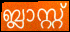
ബ്ലാസ്റ്റ്